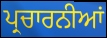
ਪ੍ਰਚਾਰਨੀਆਂ